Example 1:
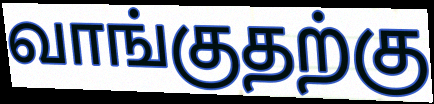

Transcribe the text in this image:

வாங்குதற்கு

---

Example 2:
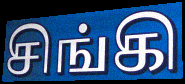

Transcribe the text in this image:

சிங்கி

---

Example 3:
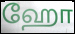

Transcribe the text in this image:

ஹோ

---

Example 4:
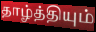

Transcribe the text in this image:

தாழ்த்தியும்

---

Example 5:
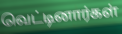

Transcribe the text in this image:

வெட்டினார்கள்